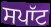
ਸਪਾੱਟ